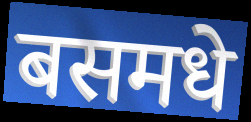
बसमधे